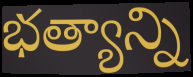
భత్యాన్ని